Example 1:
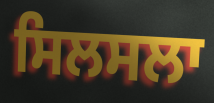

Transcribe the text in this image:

ਸਿਲਸਲਾ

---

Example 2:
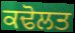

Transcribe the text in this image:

ਕਢੋਲਤ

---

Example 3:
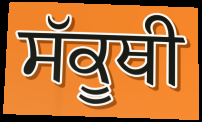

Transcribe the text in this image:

ਸੱਕੂਥੀ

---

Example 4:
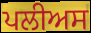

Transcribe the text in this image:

ਪਲੀਅਸ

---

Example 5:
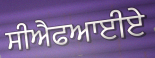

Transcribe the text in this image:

ਸੀਐਫਆਈਏ